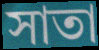
সাতা